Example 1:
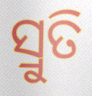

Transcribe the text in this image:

ସ୍ରୁତି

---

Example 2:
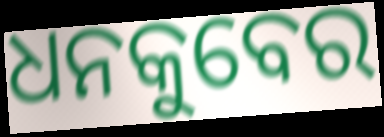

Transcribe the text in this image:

ଧନକୁବେର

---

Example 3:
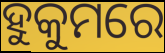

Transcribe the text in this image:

ହୁକୁମରେ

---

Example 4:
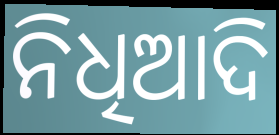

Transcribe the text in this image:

ନିଧିଆଦି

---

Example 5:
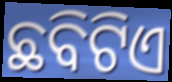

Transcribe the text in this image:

ଛବିଟିଏ